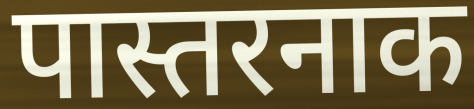
पास्तरनाक